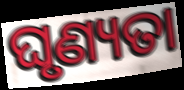
ଘୃଣ୍ୟତା